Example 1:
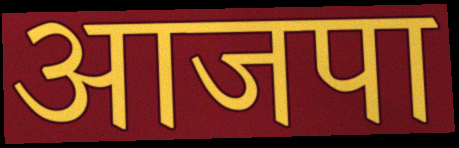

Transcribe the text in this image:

आजपा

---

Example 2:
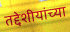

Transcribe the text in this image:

तद्देशीयांच्या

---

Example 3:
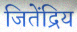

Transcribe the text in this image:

जितेंद्रिय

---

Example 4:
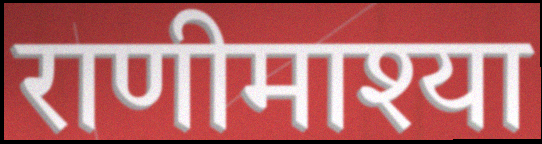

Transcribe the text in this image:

राणीमाश्या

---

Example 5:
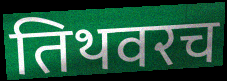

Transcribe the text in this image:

तिथवरच